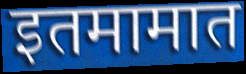
इतमामात